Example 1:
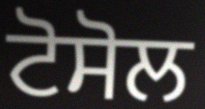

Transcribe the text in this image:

ਟੋਸੋਲ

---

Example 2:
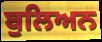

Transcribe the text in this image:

ਬੁਲਿਅਨ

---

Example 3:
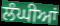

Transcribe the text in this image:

ਲੰਘੀਆਂ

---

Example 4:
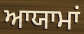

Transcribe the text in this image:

ਆਯਾਮਾਂ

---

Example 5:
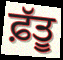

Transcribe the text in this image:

ਫ਼ੱਤੂ